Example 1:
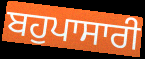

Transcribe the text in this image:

ਬਹੁਪਾਸਾਰੀ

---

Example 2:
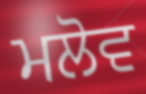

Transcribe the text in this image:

ਮਲੋਵ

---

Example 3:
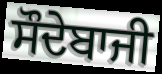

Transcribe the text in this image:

ਸੌਦੇਬਾਜੀ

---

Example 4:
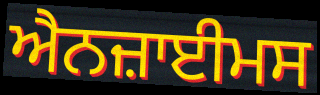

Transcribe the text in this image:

ਐਨਜ਼ਾਈਮਸ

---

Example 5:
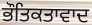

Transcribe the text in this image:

ਭੌਤਿਕਤਾਵਾਦ